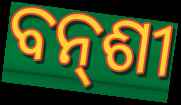
ବନ୍‌ଶୀ